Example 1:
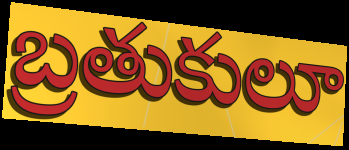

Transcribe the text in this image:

బ్రతుకులూ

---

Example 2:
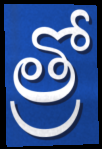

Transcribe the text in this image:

త్రో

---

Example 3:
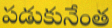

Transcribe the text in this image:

పడుకునేంత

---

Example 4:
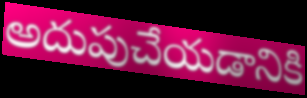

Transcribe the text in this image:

అదుపుచేయడానికి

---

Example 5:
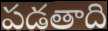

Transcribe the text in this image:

పడతాది